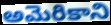
అమెరికాని